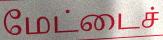
மேட்டைச்